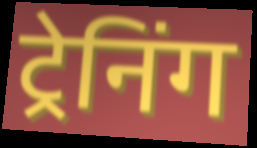
ट्रेनिंग